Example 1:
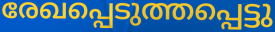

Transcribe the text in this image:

രേഖപ്പെടുത്തപ്പെട്ടു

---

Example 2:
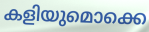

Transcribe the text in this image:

കളിയുമൊക്കെ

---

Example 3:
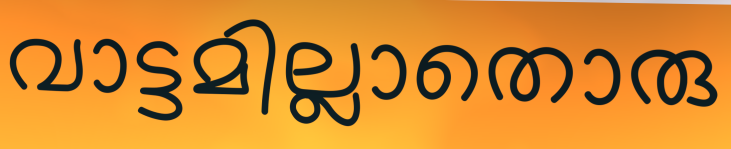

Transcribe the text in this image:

വാട്ടമില്ലാതൊരു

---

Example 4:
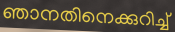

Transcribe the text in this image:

ഞാനതിനെക്കുറിച്ച്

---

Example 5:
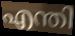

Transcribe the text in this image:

എന്തി